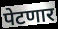
पेटणार